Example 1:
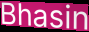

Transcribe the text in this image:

Bhasin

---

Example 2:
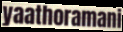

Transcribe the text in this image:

yaathoramani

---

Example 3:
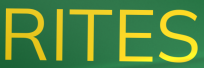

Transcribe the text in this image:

RITES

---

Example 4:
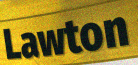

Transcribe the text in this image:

Lawton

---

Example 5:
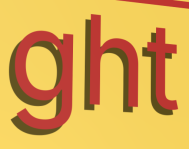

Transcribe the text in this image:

ght